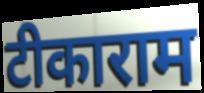
टीकाराम